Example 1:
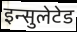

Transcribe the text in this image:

इन्सुलेटेड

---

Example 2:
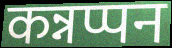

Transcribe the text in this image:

कन्नप्पन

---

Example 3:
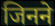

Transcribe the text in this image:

जिनने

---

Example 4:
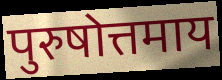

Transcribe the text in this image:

पुरुषोत्तमाय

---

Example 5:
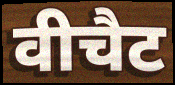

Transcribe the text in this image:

वीचैट